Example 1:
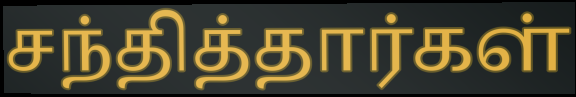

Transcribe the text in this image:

சந்தித்தார்கள்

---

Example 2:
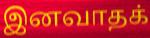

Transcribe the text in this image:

இனவாதக்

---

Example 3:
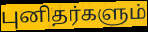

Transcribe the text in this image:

புனிதர்களும்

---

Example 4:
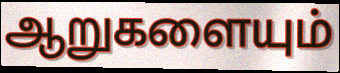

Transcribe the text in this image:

ஆறுகளையும்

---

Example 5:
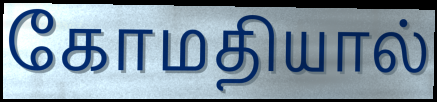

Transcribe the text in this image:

கோமதியால்